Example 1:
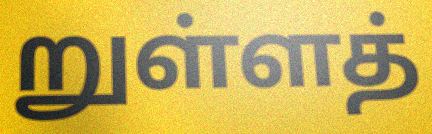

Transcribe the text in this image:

றுள்ளத்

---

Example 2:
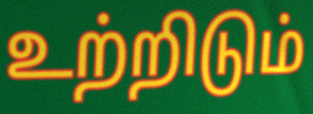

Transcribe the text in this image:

உற்றிடும்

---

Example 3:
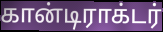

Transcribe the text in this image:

கான்டிராக்டர்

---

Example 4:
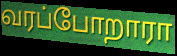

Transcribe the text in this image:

வரப்போறாரா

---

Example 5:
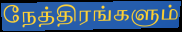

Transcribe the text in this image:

நேத்திரங்களும்